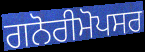
ਗਨੋਰੀਮੋਪਸਰ